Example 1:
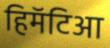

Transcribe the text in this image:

हिमॅटिआ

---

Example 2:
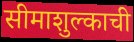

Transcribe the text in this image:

सीमाशुल्काची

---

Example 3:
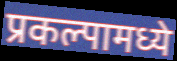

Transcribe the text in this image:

प्रकल्पामध्ये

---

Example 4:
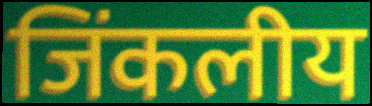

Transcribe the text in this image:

जिंकलीय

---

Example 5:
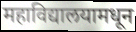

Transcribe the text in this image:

महाविद्यालयामधून